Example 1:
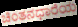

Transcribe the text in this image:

ಚಿಂತನಧಾರೆಯ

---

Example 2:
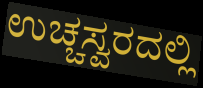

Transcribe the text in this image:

ಉಚ್ಚಸ್ವರದಲ್ಲಿ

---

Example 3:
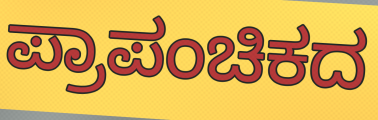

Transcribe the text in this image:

ಪ್ರಾಪಂಚಿಕದ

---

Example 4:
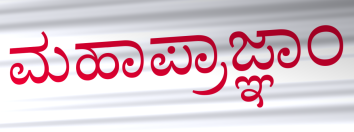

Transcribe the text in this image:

ಮಹಾಪ್ರಾಜ್ಞಾಂ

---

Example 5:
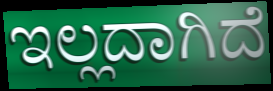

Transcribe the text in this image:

ಇಲ್ಲದಾಗಿದೆ